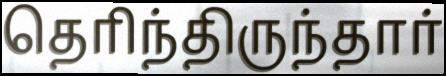
தெரிந்திருந்தார்